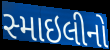
સ્માઇલીનો